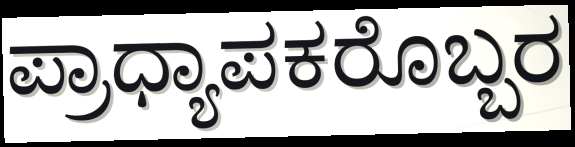
ಪ್ರಾಧ್ಯಾಪಕರೊಬ್ಬರ